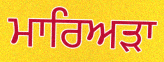
ਮਾਰਿਅੜਾ